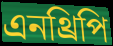
এনথ্রিপি